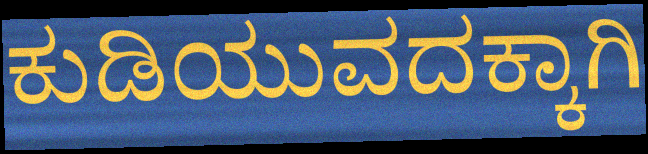
ಕುಡಿಯುವದಕ್ಕಾಗಿ